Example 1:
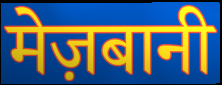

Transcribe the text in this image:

मेज़बानी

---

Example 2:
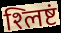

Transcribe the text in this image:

श्लिष्टं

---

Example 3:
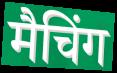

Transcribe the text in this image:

मैचिंग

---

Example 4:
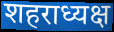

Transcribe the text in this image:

शहराध्यक्ष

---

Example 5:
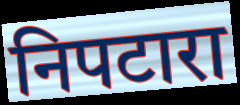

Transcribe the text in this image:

निपटारा